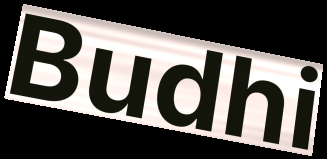
Budhi